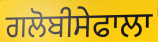
ਗਲੋਬੀਸੇਫਾਲਾ